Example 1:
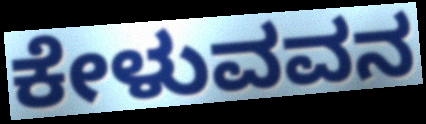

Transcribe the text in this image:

ಕೇಳುವವನ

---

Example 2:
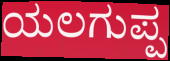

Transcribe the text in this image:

ಯಲಗುಪ್ಪ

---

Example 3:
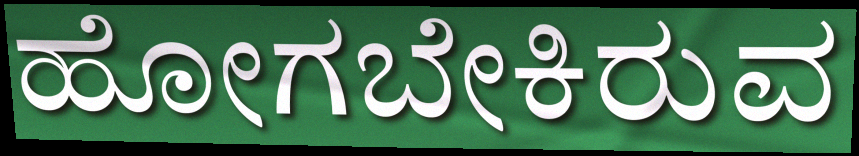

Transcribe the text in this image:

ಹೋಗಬೇಕಿರುವ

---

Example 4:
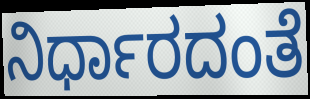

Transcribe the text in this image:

ನಿರ್ಧಾರದಂತೆ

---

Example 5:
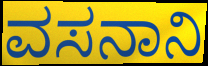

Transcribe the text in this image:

ವಸನಾನಿ